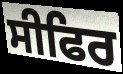
ਸੀਫਿਰ